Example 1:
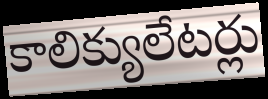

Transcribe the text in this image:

కాలిక్యులేటర్లు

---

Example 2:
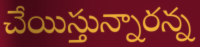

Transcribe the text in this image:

చేయిస్తున్నారన్న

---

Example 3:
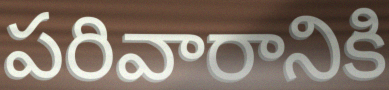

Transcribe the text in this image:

పరివారానికి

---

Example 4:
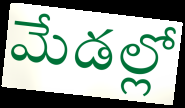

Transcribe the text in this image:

మేడల్లో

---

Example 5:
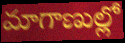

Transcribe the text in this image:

మాగాణుల్లో